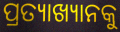
ପ୍ରତ୍ୟାଖ୍ୟାନକୁ